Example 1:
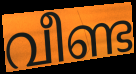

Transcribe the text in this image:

വീണ്ട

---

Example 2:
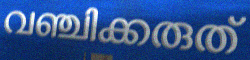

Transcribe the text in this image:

വഞ്ചിക്കരുത്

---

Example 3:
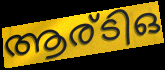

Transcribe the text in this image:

ആര്ടിഒ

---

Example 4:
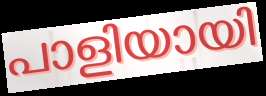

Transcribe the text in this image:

പാളിയായി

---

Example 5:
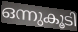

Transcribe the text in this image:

ഒന്നുകൂടി